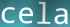
cela